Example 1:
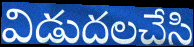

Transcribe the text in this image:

విడుదలచేసి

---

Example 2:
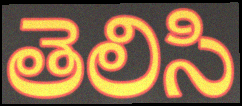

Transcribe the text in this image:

తెలిసి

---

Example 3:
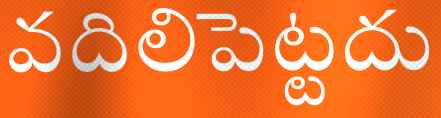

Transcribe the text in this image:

వదిలిపెట్టదు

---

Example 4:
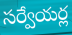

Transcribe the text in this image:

సర్వేయర్ల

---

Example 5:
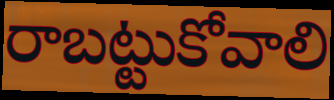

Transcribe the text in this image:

రాబట్టుకోవాలి